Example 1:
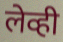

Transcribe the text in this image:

लेव्ही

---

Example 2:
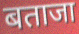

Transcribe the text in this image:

बताजा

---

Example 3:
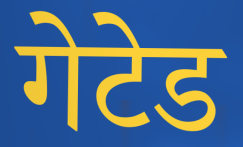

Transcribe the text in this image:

गेटेड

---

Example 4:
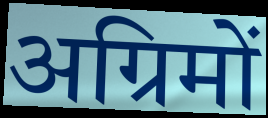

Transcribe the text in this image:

अग्रिमों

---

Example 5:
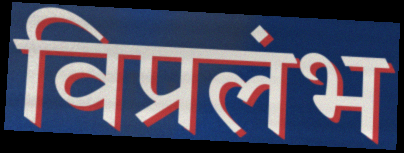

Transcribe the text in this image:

विप्रलंभ